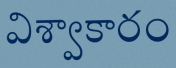
విశ్వాకారం